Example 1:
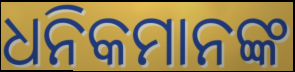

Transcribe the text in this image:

ଧନିକମାନଙ୍କ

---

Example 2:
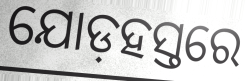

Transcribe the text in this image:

ଯୋଡ଼ହସ୍ତରେ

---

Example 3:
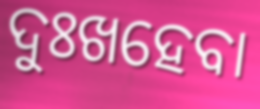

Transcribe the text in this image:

ଦୁଃଖହେବା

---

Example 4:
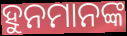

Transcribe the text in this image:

ହୁନମାନଙ୍କ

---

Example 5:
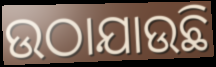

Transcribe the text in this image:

ଉଠାଯାଉଛି